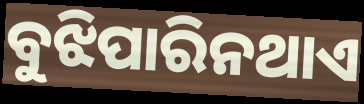
ବୁଝିପାରିନଥାଏ